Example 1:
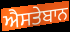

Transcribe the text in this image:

ਐਸਤੇਬਾਨ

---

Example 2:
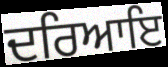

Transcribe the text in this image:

ਦਰਿਆਇ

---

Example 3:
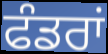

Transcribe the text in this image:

ਫੰਡਰਾਂ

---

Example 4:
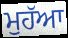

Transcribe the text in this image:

ਮੁਹੱਆ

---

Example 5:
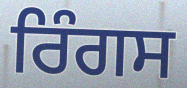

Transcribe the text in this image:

ਰਿੰਗਸ